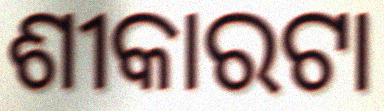
ଶୀକାରଟା